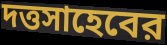
দত্তসাহেবের